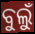
ବୁଲୁଁ